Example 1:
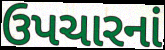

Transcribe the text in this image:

ઉપચારનાં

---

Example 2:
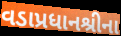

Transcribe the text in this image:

વડાપ્રધાનશ્રીના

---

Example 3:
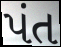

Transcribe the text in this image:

પંત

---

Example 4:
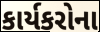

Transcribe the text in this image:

કાર્યકરોના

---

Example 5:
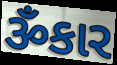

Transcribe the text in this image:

ૐકાર